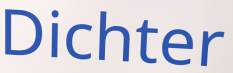
Dichter